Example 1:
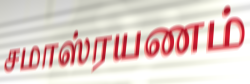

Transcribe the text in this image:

சமாஸ்ரயணம்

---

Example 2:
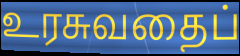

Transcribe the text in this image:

உரசுவதைப்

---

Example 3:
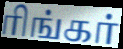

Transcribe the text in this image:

ரிங்கர்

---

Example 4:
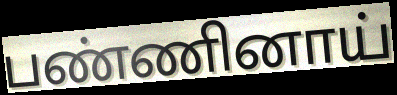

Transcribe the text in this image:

பண்ணினாய்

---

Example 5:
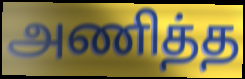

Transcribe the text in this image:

அணித்த